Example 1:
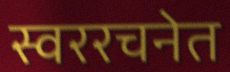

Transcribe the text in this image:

स्वररचनेत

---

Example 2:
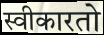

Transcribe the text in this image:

स्वीकारतो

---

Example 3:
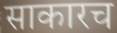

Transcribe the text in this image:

साकारच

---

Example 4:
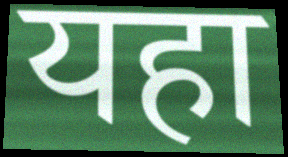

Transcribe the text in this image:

यहा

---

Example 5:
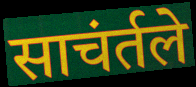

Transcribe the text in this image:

साचंर्तले